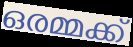
ഒരമ്മക്ക്